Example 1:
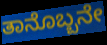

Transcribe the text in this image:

ತಾನೊಬ್ಬನೇ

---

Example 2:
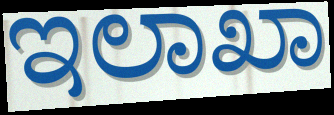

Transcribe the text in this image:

ಇಲಾಖಾ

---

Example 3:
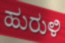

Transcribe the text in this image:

ಹುರುಳಿ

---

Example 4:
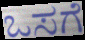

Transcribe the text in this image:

ಒಸಗೆ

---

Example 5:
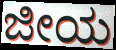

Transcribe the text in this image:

ಜೀಯ